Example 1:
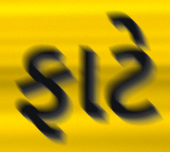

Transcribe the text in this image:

ફાટે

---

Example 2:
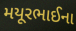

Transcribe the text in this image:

મયૂરભાઈના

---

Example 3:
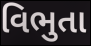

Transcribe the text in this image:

વિભુતા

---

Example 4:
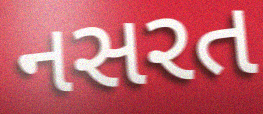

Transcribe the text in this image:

નસરત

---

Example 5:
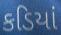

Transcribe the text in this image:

કડિયાં